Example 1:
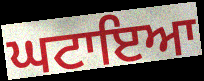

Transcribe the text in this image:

ਘਟਾਇਆ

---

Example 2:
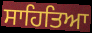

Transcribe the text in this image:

ਸਾਹਿਤਿਆ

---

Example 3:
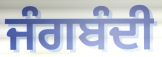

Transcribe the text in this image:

ਜੰਗਬੰਦੀ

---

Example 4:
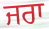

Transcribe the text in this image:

ਜਰਾ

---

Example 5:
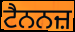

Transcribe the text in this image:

ਟੈਨਨਜ਼